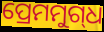
ପ୍ରେମମୁଗ୍‌ଧ